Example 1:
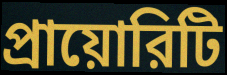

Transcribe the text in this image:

প্রায়োরিটি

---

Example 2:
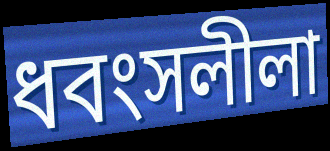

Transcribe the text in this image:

ধবংসলীলা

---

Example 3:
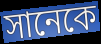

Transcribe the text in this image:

সানেকে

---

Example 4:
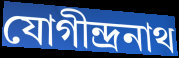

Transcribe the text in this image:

যোগীন্দ্রনাথ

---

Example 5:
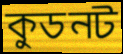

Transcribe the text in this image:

কুডনট